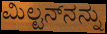
ಮಿಲ್ಟನ್‌ನನ್ನು